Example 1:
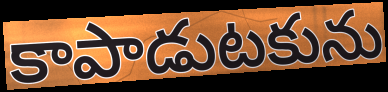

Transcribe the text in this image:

కాపాడుటకును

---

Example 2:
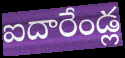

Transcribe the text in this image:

ఐదారేండ్ల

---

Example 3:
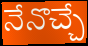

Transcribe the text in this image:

నేనొచ్చే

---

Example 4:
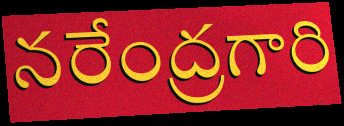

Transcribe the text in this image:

నరేంద్రగారి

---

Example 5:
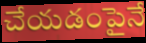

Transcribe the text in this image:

చేయడంపైనే